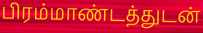
பிரம்மாண்டத்துடன்